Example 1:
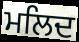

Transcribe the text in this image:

ਮਲਿਦ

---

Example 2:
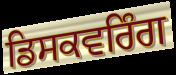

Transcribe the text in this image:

ਡਿਸਕਵਰਿੰਗ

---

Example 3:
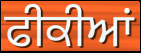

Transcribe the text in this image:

ਫੀਕੀਆਂ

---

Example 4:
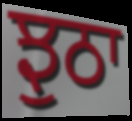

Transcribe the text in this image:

ਝੁਠਾ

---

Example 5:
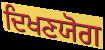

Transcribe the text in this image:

ਦਿਖਣਯੋਗ